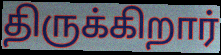
திருக்கிறார்